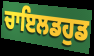
ਚਾਇਲਡਹੁਡ